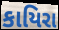
કાયિરા